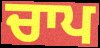
ਚਾਪ